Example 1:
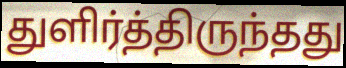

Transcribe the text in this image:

துளிர்த்திருந்தது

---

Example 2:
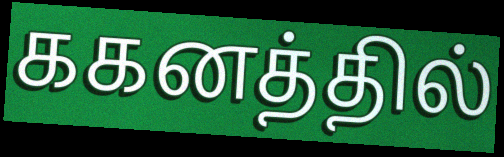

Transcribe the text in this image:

ககனத்தில்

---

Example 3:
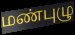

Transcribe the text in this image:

மண்புழு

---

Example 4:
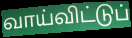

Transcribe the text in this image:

வாய்விட்டுப்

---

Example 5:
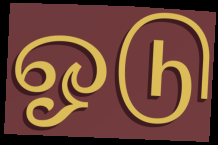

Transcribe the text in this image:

ஓடு